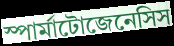
স্পার্মাটোজেনেসিস